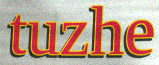
tuzhe